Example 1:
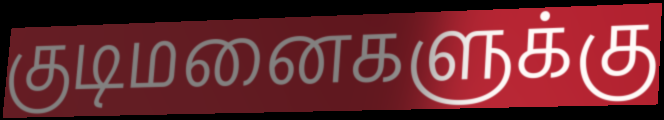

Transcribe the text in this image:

குடிமனைகளுக்கு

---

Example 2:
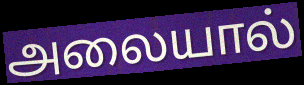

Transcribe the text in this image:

அலையால்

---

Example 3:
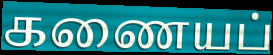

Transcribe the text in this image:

கணையப்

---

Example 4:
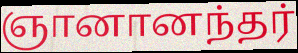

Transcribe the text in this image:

ஞானானந்தர்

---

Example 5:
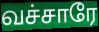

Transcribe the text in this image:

வச்சாரே